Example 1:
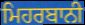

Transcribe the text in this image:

ਮਿਹਰਬਾਨੀ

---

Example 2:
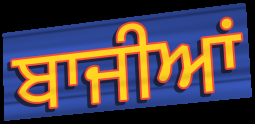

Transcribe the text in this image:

ਬਾਜੀਆਂ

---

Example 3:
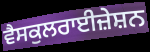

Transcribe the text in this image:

ਵੈਸਕੁਲਰਾਈਜ਼ੇਸ਼ਨ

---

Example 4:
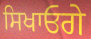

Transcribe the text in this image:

ਸਿਖਾਓਗੇ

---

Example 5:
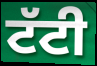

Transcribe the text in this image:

ਟੱਟੀ